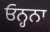
ਓਨ੍ਹਨਾ